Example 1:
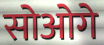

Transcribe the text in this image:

सोओगे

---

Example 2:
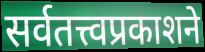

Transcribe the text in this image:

सर्वतत्त्वप्रकाशने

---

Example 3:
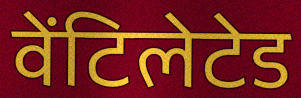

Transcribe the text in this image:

वेंटिलेटेड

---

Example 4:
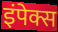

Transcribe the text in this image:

इंपेक्स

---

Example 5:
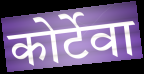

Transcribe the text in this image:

कोर्टेवा